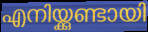
എനിയ്ക്കുണ്ടായി